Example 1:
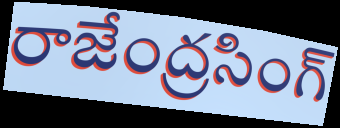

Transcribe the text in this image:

రాజేంద్రసింగ్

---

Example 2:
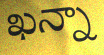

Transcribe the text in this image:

ఖన్నా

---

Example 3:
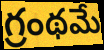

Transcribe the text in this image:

గ్రంథమే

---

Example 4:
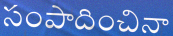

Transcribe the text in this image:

సంపాదించినా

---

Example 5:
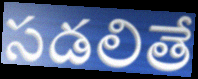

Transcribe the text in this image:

సడలితే